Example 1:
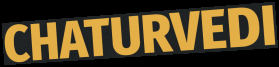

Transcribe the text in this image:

CHATURVEDI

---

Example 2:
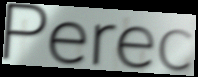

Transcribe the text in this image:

Perec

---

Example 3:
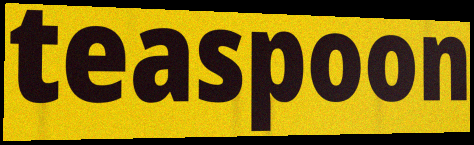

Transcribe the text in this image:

teaspoon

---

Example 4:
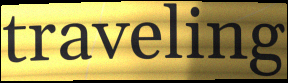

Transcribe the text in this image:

traveling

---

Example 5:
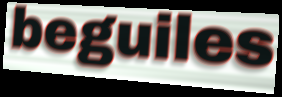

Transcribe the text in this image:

beguiles